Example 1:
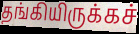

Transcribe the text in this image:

தங்கியிருக்கச்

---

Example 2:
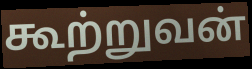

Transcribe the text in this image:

கூற்றுவன்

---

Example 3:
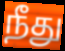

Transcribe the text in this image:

நீது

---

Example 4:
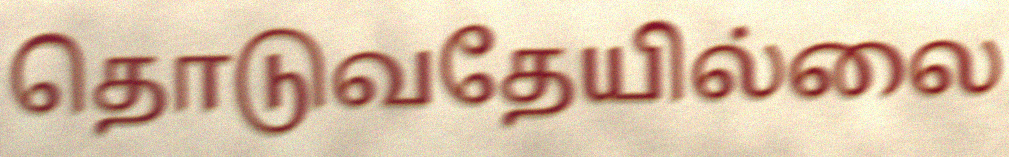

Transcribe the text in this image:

தொடுவதேயில்லை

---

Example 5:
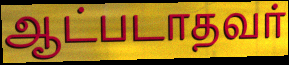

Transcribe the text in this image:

ஆட்படாதவர்